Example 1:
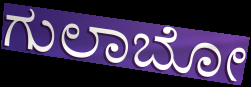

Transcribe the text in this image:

ಗುಲಾಬೋ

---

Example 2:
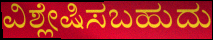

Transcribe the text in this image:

ವಿಶ್ಲೇಷಿಸಬಹುದು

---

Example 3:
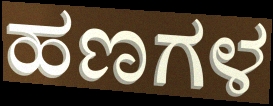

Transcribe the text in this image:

ಹಣಗಳ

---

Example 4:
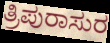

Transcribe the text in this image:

ತ್ರಿಪುರಾಸುರ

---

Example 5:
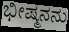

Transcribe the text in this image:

ಭೀಷ್ಮನನು